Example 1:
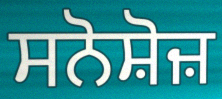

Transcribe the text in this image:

ਸਨੋਸ਼ੋਜ਼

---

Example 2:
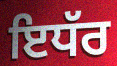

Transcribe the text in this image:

ਇਧੱਰ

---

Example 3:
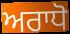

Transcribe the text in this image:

ਅਰਾਧੋ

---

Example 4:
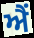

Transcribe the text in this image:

ਐਂ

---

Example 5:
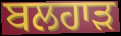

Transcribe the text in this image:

ਬਲਹਾੜ